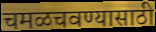
चमळचवण्यासाठी